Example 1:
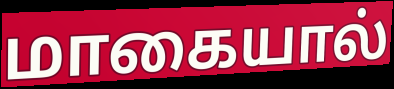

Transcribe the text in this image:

மாகையால்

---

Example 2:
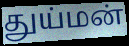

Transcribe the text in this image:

துய்மன்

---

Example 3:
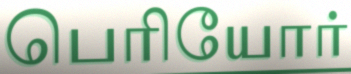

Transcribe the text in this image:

பெரியோர்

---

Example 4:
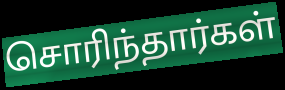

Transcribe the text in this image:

சொரிந்தார்கள்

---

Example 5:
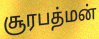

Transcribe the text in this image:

சூரபத்மன்